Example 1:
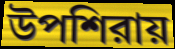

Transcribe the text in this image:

উপশিরায়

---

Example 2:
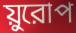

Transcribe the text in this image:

য়ুরোপ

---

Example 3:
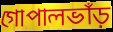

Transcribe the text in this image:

গোপালভাঁড়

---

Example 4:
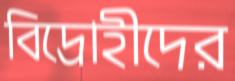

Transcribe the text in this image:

বিদ্রোহীদের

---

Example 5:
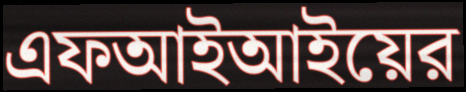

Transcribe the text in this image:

এফআইআইয়ের